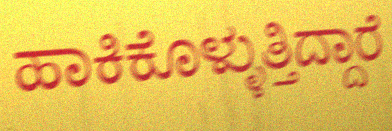
ಹಾಕಿಕೊಳ್ಳುತ್ತಿದ್ದಾರೆ